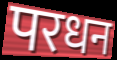
परधन